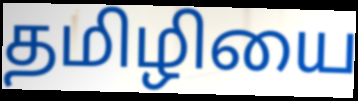
தமிழியை